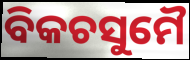
ବିକଚସୁମୈ